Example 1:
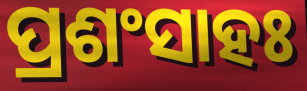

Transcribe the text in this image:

ପ୍ରଶଂସାହଃ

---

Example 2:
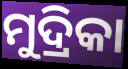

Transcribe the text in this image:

ମୁଦ୍ରିକା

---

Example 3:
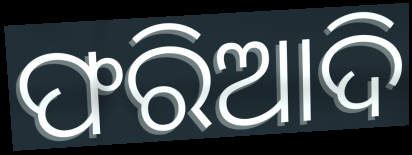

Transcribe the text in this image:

ଫରିଆଦି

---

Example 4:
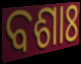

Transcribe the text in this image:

ବଶାଃ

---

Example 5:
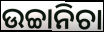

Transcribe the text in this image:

ଉଚ୍ଚାନିଚା